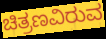
ಚಿತ್ರಣವಿರುವ